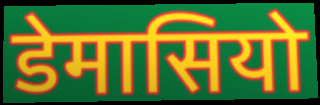
डेमासियो